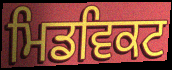
ਮਿਡਵਿਕਟ